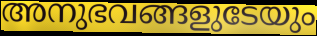
അനുഭവങ്ങളുടേയും